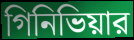
গিনিভিয়ার